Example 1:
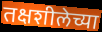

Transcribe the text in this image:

तक्षशीलेच्या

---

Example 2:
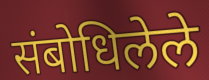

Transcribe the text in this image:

संबोधिलेले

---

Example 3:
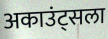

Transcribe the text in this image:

अकाउंट्सला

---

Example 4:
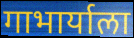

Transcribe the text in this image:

गाभार्याला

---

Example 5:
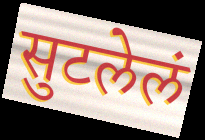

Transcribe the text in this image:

सुटलेलं